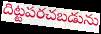
దిట్టపరచబడును